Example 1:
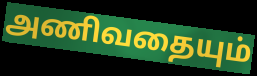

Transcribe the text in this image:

அணிவதையும்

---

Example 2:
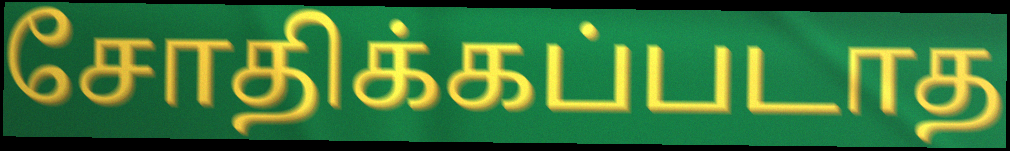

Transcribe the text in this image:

சோதிக்கப்படாத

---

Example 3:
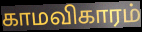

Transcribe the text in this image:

காமவிகாரம்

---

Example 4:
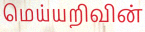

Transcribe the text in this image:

மெய்யறிவின்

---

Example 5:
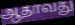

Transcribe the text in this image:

ஆதாவது